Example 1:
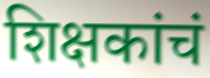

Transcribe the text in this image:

शिक्षकांचं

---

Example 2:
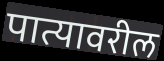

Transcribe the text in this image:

पात्यावरील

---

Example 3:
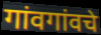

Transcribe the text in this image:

गांवगांवचे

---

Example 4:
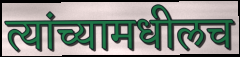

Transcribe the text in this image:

त्यांच्यामधीलच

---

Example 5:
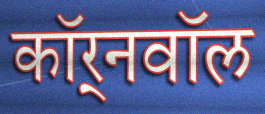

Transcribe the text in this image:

कॉर्नवॉल